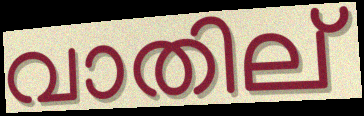
വാതില്